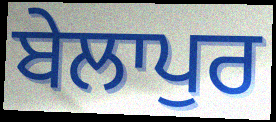
ਬੇਲਾਪੁਰ